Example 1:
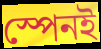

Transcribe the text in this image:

স্পেনই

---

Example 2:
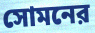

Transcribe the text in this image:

সোমনের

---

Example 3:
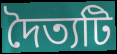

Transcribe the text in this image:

দৈত্যটি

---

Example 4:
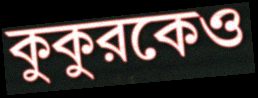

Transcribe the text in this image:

কুকুরকেও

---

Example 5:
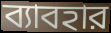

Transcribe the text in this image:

ব্যাবহার